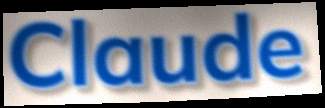
Claude